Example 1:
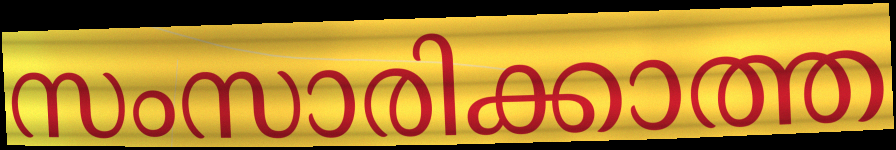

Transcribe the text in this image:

സംസാരിക്കാത്ത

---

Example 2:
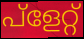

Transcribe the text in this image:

പ്ളേറ്റ്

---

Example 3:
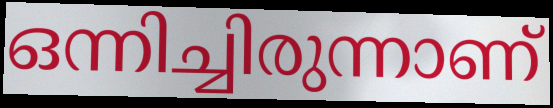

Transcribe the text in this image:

ഒന്നിച്ചിരുന്നാണ്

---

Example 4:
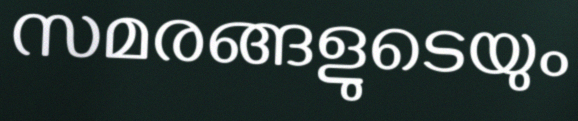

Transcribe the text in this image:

സമരങ്ങളുടെയും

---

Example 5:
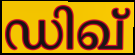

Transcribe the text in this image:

ഡിഖ്